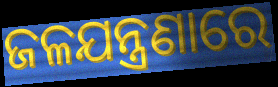
ଜଳଯନ୍ତ୍ରଣାରେ